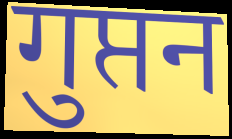
गुप्तन